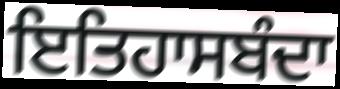
ਇਤਿਹਾਸਬੰਦਾ